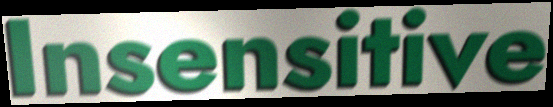
Insensitive